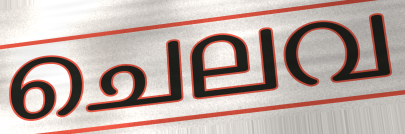
ചെലവ